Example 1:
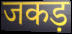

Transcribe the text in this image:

जकड़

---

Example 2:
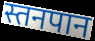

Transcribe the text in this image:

स्तनपान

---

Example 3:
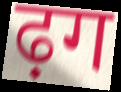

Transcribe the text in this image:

ढ़ग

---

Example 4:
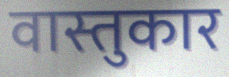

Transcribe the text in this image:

वास्तुकार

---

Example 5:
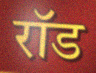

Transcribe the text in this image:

रॉड